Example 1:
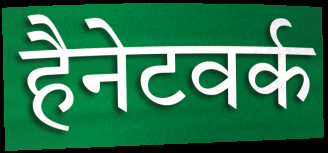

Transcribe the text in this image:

हैनेटवर्क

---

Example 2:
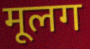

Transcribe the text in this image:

मूलग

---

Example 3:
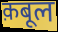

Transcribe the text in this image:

क़बूल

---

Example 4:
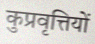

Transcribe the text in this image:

कुप्रवृत्तियों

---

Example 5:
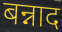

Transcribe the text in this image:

बन्नाद